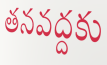
తనవద్దకు